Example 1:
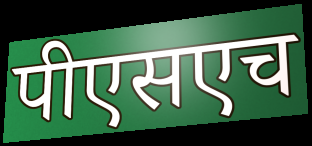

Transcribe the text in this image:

पीएसएच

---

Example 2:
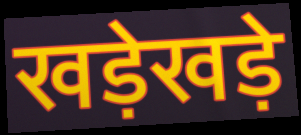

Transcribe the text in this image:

खड़ेखड़े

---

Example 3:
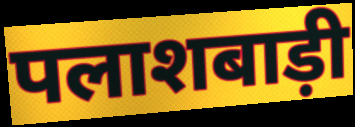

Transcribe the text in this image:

पलाशबाड़ी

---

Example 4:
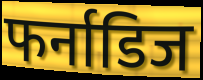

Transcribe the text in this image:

फर्नाडिज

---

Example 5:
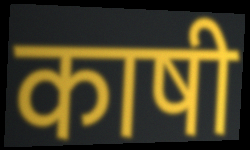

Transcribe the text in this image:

काषी